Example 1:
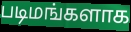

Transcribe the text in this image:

படிமங்களாக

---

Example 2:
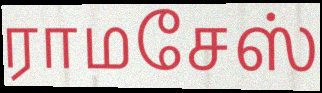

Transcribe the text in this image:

ராமசேஸ்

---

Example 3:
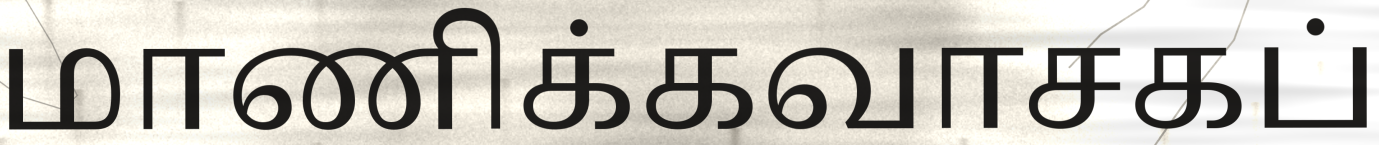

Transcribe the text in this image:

மாணிக்கவாசகப்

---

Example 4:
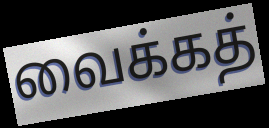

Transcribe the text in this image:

வைக்கத்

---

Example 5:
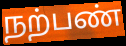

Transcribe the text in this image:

நற்பண்